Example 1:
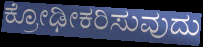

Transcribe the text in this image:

ಕ್ರೋಢೀಕರಿಸುವುದು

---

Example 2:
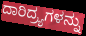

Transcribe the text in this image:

ದಾರಿದ್ರ್ಯಗಳನ್ನು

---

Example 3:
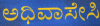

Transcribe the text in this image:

ಅಧಿವಾಸೇಸಿ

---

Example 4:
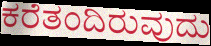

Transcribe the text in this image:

ಕರೆತಂದಿರುವುದು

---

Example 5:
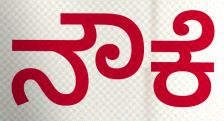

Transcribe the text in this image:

ನೌಕೆ